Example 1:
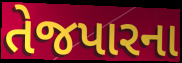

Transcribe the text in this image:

તેજપારના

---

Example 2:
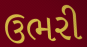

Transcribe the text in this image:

ઉભરી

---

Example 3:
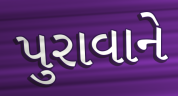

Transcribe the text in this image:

પુરાવાને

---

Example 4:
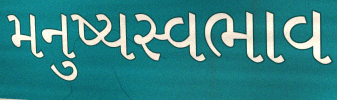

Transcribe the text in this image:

મનુષ્યસ્વભાવ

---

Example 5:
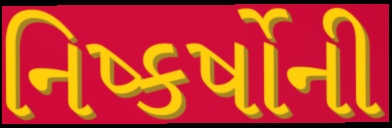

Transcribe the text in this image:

નિષ્કર્ષોની